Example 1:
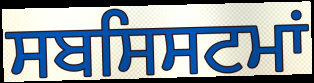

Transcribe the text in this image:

ਸਬਸਿਸਟਮਾਂ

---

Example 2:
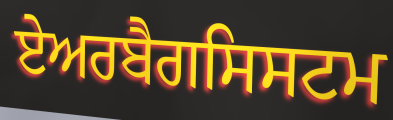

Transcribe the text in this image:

ਏਅਰਬੈਗਸਿਸਟਮ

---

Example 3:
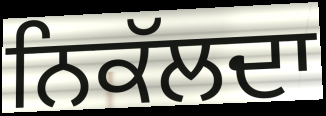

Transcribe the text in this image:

ਨਿਕੱਲਦਾ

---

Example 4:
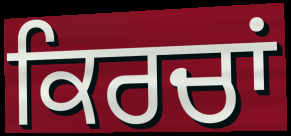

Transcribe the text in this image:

ਕਿਰਚਾਂ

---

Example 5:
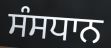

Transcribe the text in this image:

ਸੰਸਧਾਨ